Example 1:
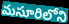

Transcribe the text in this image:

మసూరిలోని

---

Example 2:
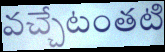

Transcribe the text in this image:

వచ్చేటంతటి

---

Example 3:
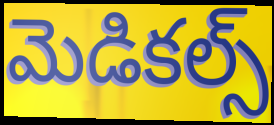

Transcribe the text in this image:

మెడికల్స్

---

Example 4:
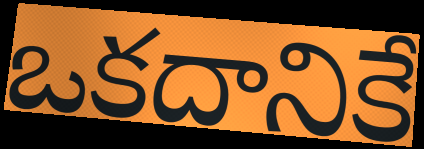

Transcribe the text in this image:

ఒకదానికే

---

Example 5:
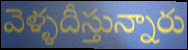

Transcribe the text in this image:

వెళ్ళదీస్తున్నారు